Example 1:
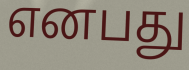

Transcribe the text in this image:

எனபது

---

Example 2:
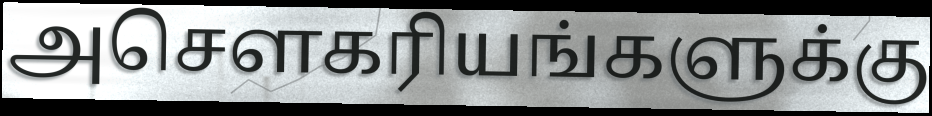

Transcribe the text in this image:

அசௌகரியங்களுக்கு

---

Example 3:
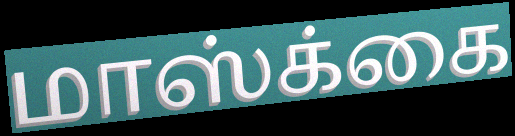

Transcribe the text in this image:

மாஸ்க்கை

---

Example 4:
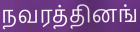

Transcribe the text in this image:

நவரத்தினங்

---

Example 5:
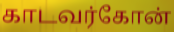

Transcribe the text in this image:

காடவர்கோன்